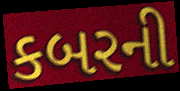
કબરની